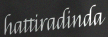
hattiradinda